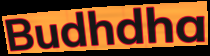
Budhdha